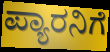
ಪ್ಯಾರನಿಗೆ